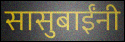
सासुबाईंनी